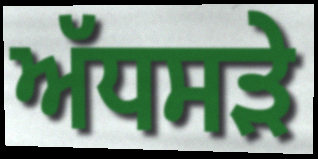
ਅੱਧਸੜੇ